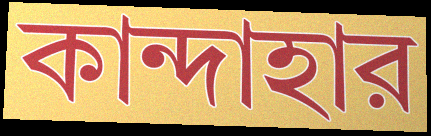
কান্দাহার